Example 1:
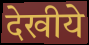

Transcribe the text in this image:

देखीये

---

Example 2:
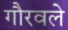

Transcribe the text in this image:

गौरवले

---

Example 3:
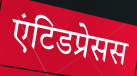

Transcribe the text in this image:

एंटिडप्रेसस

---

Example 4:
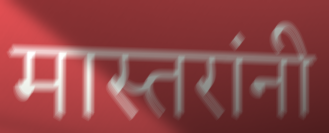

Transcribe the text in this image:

मास्तरांनी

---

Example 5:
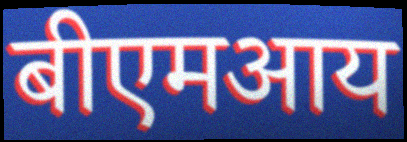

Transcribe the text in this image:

बीएमआय